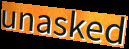
unasked